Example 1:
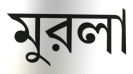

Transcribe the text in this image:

মুরলা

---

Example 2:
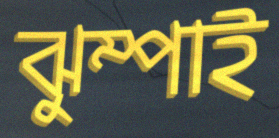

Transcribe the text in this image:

ঝুম্পাই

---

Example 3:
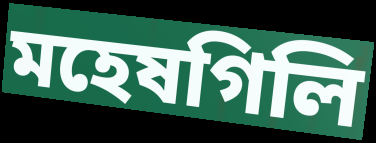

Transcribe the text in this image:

মহেষগিলি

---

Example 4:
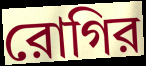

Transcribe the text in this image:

রোগির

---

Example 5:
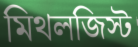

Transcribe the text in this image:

মিথলজিস্ট